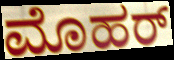
ಮೊಹರ್